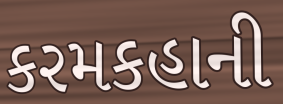
કરમકહાની